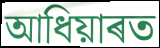
আধিয়াৰত